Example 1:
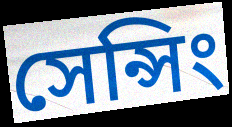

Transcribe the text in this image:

সেন্সিং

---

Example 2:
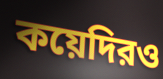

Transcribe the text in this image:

কয়েদিরও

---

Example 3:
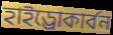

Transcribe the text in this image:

হাইড্রোকার্বন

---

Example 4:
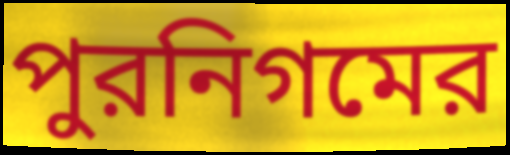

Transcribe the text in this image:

পুরনিগমের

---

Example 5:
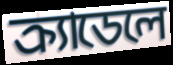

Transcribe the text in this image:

ক্র্যাডেলে